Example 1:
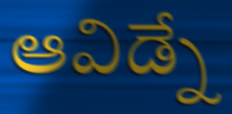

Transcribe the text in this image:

ఆవిడ్నే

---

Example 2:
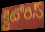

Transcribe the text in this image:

క్లైటోరిస్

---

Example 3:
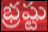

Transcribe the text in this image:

భ్రష్టు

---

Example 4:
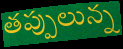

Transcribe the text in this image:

తప్పులున్న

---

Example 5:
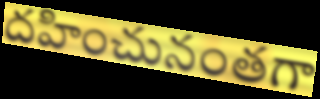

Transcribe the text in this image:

దహించునంతగా